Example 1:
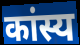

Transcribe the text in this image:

कांस्य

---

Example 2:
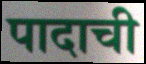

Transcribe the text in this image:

पादाची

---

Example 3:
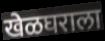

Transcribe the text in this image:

खेळघराला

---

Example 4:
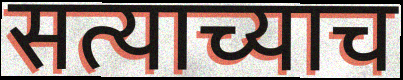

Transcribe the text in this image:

सत्याच्याच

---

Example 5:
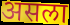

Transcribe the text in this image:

असला